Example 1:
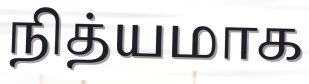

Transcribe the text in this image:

நித்யமாக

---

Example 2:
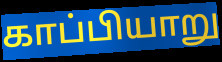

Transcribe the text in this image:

காப்பியாறு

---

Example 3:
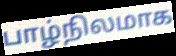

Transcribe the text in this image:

பாழ்நிலமாக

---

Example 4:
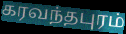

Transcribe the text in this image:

கரவந்தபுரம்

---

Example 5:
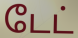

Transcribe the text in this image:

டேட்